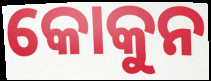
କୋକୁନ